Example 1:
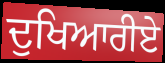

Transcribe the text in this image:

ਦੁਖਿਆਰੀਏ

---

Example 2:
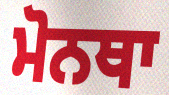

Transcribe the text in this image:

ਮੋਨਥਾ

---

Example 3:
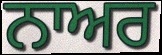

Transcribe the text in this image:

ਨਾਅਰ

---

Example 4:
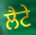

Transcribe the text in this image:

ਲੈਟੇ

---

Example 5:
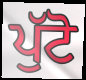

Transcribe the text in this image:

ਪੁੱਟੋ